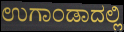
ಉಗಾಂಡಾದಲ್ಲಿ